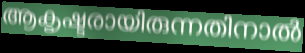
ആകൃഷ്ടരായിരുന്നതിനാൽ